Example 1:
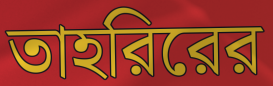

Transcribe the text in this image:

তাহরিরের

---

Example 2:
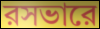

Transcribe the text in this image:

রসভারে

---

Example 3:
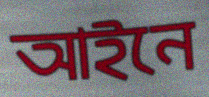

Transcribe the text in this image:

আইনে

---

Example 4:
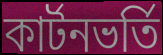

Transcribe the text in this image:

কার্টনভর্তি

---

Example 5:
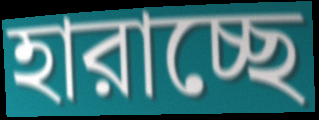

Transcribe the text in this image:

হারাচ্ছে